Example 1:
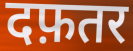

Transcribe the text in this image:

दफ़तर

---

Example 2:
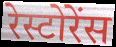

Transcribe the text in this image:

रेस्टोरेंस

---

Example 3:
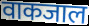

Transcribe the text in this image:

वाकजाल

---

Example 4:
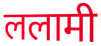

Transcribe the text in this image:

ललामी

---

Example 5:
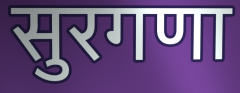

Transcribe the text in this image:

सुरगणा